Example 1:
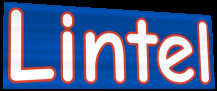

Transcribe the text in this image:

Lintel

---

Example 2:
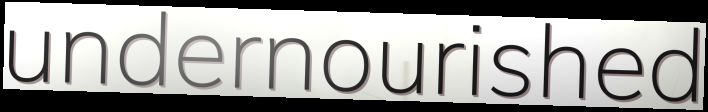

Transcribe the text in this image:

undernourished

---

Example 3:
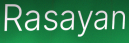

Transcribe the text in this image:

Rasayan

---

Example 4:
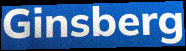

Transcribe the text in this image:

Ginsberg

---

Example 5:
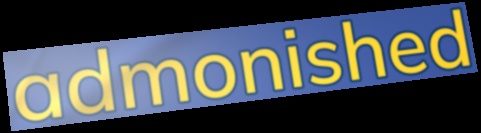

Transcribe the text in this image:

admonished